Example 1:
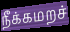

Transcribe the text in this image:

நீக்கமறச்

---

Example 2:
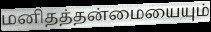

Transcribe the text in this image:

மனிதத்தன்மையையும்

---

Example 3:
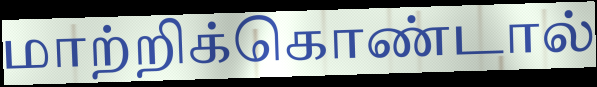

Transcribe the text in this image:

மாற்றிக்கொண்டால்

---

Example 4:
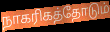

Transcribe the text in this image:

நாகரிகத்தோடும்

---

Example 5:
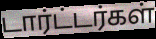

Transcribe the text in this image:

டார்ட்டர்கள்